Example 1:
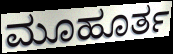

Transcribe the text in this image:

ಮೂಹೂರ್ತ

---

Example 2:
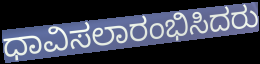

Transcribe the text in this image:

ಧಾವಿಸಲಾರಂಭಿಸಿದರು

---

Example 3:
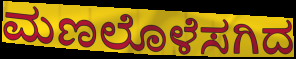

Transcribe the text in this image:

ಮಣಲೊಳೆಸಗಿದ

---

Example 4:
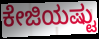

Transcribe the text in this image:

ಕೇಜಿಯಷ್ಟು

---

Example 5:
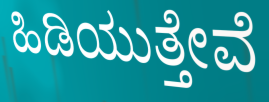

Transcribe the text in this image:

ಹಿಡಿಯುತ್ತೇವೆ